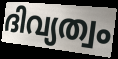
ദിവ്യത്വം